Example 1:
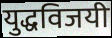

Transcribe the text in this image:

युद्धविजयी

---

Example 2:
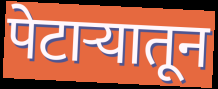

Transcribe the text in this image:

पेटाऱ्यातून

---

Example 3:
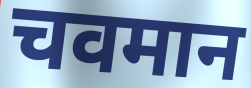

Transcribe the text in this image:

चवमान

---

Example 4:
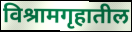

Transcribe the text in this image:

विश्रामगृहातील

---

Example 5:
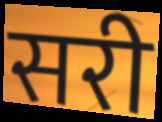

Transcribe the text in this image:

सरी